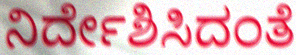
ನಿರ್ದೇಶಿಸಿದಂತೆ